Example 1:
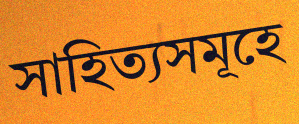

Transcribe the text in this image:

সাহিত্যসমূহে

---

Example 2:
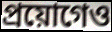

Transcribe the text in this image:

প্ৰয়োগেও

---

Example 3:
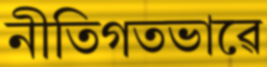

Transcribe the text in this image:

নীতিগতভাৱে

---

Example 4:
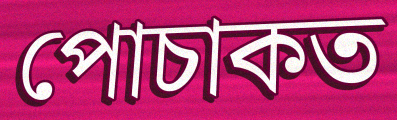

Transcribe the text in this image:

পোচাকত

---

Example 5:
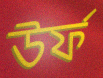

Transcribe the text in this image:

উৰ্ফ